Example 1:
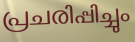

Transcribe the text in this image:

പ്രചരിപ്പിച്ചും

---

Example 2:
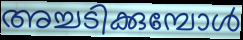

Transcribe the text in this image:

അച്ചടിക്കുമ്പോൾ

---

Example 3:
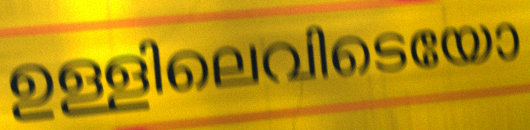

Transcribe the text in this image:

ഉള്ളിലെവിടെയോ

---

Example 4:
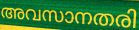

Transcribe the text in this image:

അവസാനതരി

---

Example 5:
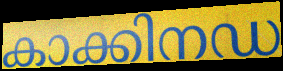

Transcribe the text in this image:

കാക്കിനഡ